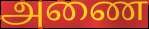
அணை